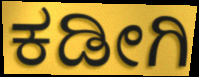
ಕಡೀಗಿ